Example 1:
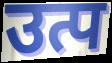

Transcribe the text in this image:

उत्प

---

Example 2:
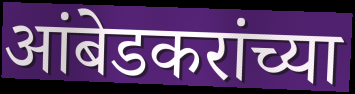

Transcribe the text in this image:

आंबेडकरांच्या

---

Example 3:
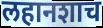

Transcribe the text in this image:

लहानशाच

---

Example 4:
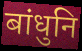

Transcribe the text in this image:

बांधुनि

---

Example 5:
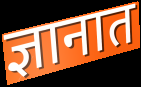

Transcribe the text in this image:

ज्ञानात